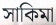
সাকিমা